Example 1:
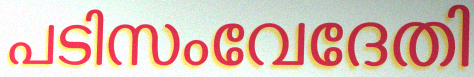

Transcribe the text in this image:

പടിസംവേദേതി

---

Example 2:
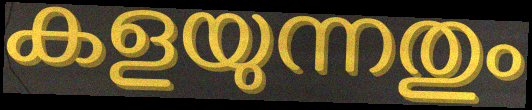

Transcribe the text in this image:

കളയുന്നതും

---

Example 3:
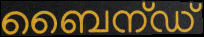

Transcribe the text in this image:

ബൈന്ഡ്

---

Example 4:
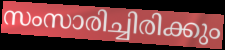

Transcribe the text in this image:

സംസാരിച്ചിരിക്കും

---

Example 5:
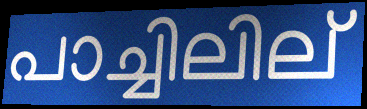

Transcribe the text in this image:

പാച്ചിലില്